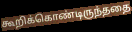
கூறிக்கொண்டிருந்ததை